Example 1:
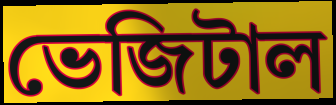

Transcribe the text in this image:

ভেজিটাল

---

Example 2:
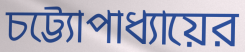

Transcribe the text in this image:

চট্ট্যোপাধ্যায়ের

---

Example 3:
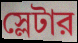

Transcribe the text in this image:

স্লেটার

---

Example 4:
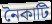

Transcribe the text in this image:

নৈকাটি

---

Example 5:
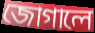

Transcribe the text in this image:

জোগালে